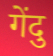
गेंदु